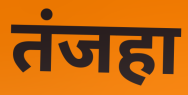
तंजहा